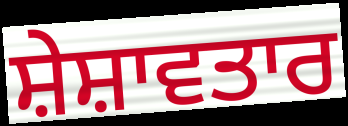
ਸ਼ੇਸ਼ਾਵਤਾਰ